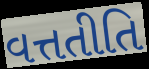
વત્તતીતિ